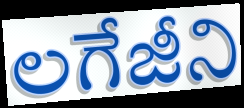
లగేజీని